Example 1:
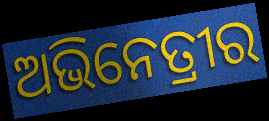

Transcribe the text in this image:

ଅଭିନେତ୍ରୀର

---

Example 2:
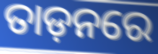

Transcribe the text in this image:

ତାଡ଼ନରେ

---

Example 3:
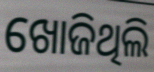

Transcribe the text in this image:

ଖୋଜିଥିଲି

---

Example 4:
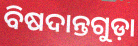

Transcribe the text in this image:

ବିଷଦାନ୍ତଗୁଡ଼ା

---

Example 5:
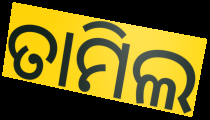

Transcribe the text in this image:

ତାମିଲ